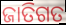
ଜାତିଗତ